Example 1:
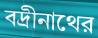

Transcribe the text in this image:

বদ্রীনাথের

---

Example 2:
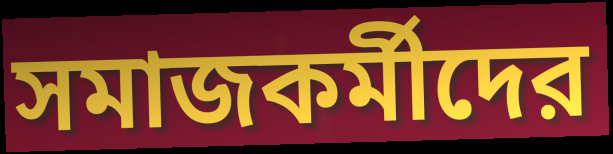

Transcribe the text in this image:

সমাজকর্মীদের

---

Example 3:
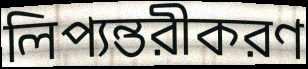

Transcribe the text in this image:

লিপ্যন্তরীকরণ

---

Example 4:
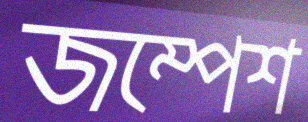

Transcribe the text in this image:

জম্পেশ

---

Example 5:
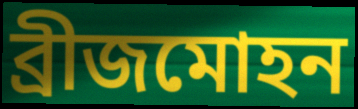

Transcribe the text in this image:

ব্রীজমোহন